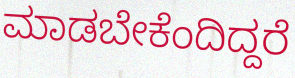
ಮಾಡಬೇಕೆಂದಿದ್ದರೆ